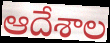
ఆదేశాల